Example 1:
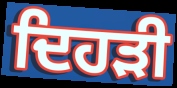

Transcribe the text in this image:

ਦਿਹੜੀ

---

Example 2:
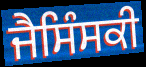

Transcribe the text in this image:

ਜੈਸਿੰਸਕੀ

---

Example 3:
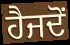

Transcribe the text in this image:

ਹੈਜਦੋਂ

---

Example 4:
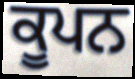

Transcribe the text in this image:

ਕੂਪਨ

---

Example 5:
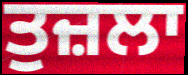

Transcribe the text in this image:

ਤੁਜ਼ਲਾ